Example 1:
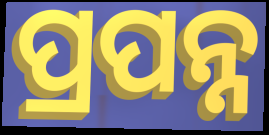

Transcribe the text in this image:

ପ୍ରପନ୍ନ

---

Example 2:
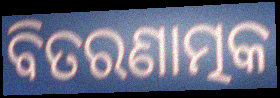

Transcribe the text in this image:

ବିତରଣାତ୍ମକ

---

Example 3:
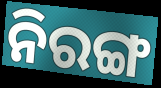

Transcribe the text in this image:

ନିରଙ୍ଗ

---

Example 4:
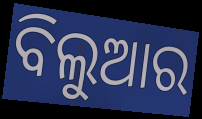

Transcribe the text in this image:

ବିଲୁଆର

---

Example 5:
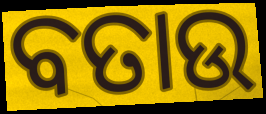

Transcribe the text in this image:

ବତାଉ